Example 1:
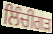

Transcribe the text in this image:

ਲਿੰਚੀਗੜ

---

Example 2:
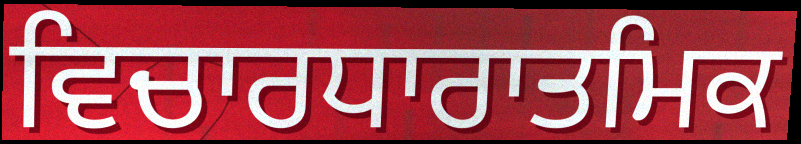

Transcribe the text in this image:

ਵਿਚਾਰਧਾਰਾਤਮਿਕ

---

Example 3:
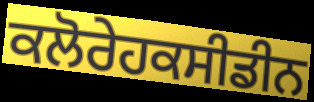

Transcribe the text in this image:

ਕਲੋਰੇਹਕਸੀਡੀਨ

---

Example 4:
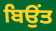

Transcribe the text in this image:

ਬਿਉਂਤ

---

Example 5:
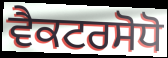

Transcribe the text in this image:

ਵੈਕਟਰਸੋਧੋ